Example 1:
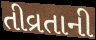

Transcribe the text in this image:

તીવ્રતાની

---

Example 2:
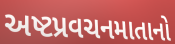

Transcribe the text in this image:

અષ્ટપ્રવચનમાતાનો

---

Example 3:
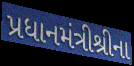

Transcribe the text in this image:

પ્રધાનમંત્રીશ્રીના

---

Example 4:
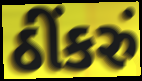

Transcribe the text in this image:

ઠીંકરું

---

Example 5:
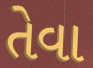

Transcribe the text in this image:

તેવા